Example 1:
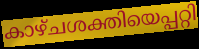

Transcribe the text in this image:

കാഴ്ചശക്തിയെപ്പറ്റി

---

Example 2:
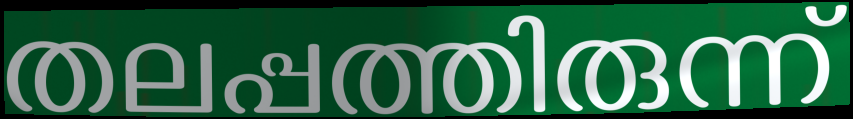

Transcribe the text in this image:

തലപ്പത്തിരുന്ന്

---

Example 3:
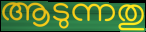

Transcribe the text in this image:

ആടുന്നതു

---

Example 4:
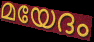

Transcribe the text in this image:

മയേദം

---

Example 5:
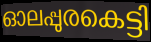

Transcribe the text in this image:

ഓലപ്പുരകെട്ടി